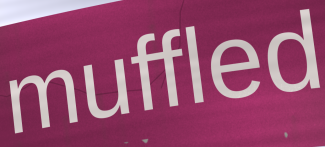
muffled